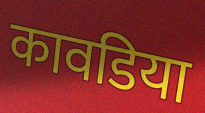
कावडिया